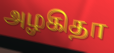
அழகிதா